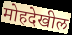
मोहदेखील